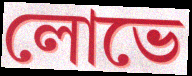
লোভে